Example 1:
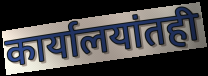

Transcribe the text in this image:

कार्यालयांतही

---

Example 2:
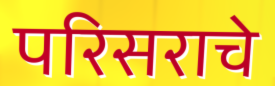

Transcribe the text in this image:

परिसराचे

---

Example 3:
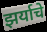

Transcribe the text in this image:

झर्याचे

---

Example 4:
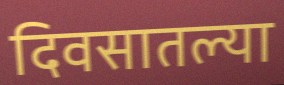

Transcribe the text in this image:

दिवसातल्या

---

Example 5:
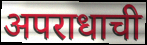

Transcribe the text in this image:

अपराधाची